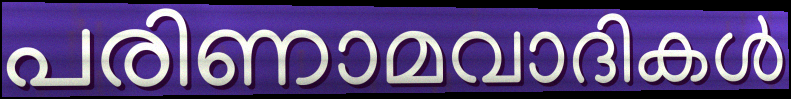
പരിണാമവാദികൾ